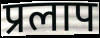
प्रलाप